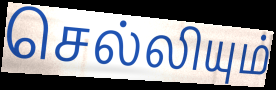
செல்லியும்